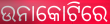
ଉନାକୋଟିରେ